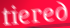
tiered